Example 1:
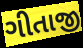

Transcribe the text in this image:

ગીતાજી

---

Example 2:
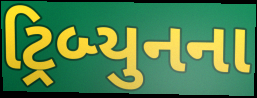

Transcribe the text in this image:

ટ્રિબ્યુનના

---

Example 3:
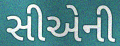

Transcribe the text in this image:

સીએની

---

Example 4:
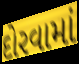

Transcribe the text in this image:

દોરવામાં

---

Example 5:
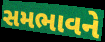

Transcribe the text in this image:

સમભાવને